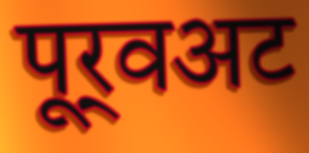
पूर्वअट